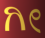
ಗೀ